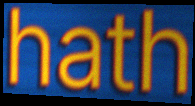
hath